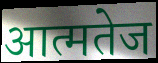
आत्मतेज